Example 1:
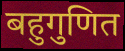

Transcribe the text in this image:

बहुगुणित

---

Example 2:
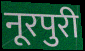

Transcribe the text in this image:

नूरपुरी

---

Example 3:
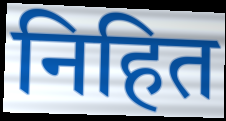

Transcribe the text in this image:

निहित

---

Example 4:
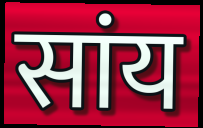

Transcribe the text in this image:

सांय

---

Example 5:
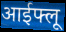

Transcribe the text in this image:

आईफ्लू